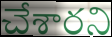
చేశారని